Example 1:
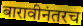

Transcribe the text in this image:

बारावीनंतरच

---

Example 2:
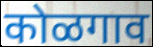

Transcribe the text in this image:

कोळगाव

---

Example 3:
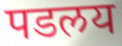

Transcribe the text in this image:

पडलय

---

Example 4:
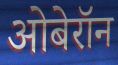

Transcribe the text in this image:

ओबेरॉन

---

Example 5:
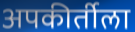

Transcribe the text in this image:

अपकीर्तीला